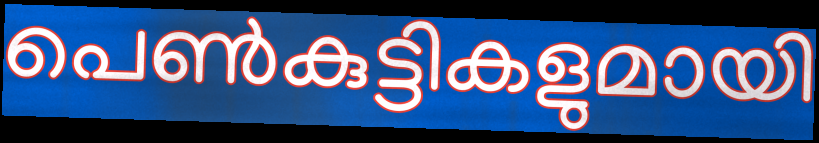
പെൺകുട്ടികളുമായി